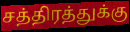
சத்திரத்துக்கு